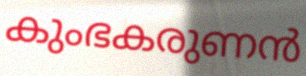
കുംഭകരുണൻ